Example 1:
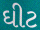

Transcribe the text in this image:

ઘીટ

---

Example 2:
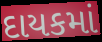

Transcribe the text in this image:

દાયકમાં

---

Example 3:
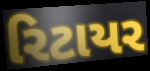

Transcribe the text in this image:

રિટાયર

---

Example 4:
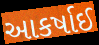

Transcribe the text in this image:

આકર્ષાઈ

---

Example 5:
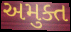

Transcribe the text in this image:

અમુક્ત